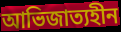
আভিজাত্যহীন